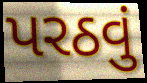
પરઠવું